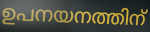
ഉപനയനത്തിന്